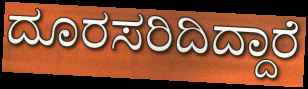
ದೂರಸರಿದಿದ್ದಾರೆ